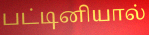
பட்டினியால்